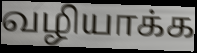
வழியாக்க